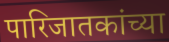
पारिजातकांच्या